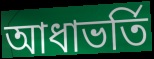
আধাভর্তি